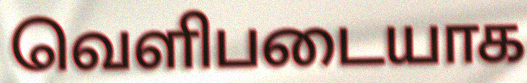
வெளிபடையாக